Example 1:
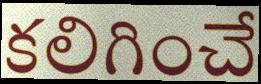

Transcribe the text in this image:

కలిగించే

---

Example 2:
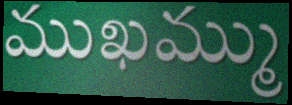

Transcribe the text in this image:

ముఖమ్ము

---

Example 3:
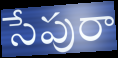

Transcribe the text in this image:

సేపురా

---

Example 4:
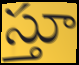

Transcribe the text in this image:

స్తూ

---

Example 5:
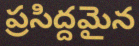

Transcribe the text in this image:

ప్రసిద్దమైన